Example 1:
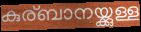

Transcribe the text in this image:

കുര്ബാനയ്ക്കുള്ള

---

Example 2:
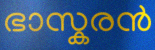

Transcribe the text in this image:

ഭാസ്കരൻ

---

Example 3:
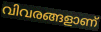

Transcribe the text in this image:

വിവരങ്ങളാണ്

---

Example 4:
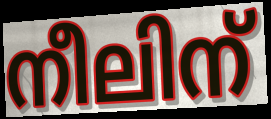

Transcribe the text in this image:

നീലിന്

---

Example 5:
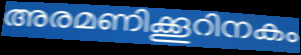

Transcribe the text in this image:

അരമണിക്കൂറിനകം